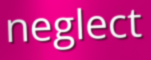
neglect